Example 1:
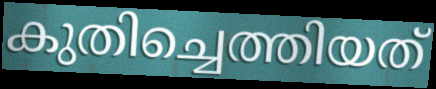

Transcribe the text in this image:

കുതിച്ചെത്തിയത്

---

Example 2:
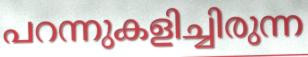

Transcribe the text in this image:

പറന്നുകളിച്ചിരുന്ന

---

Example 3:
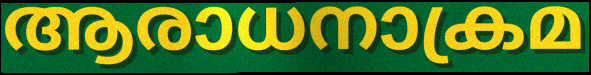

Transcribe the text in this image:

ആരാധനാക്രമ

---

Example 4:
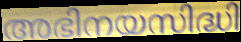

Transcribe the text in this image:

അഭിനയസിദ്ധി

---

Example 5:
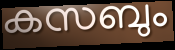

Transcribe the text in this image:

കസബും